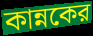
কান্নকের